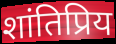
शांतिप्रिय